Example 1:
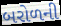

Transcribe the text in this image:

બરોળની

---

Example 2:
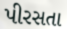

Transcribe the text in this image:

પીરસતા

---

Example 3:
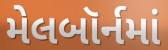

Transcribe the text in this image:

મેલબૉર્નમાં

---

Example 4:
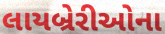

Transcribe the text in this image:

લાયબ્રેરીઓના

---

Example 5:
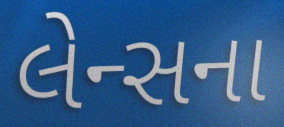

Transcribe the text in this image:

લેન્સના